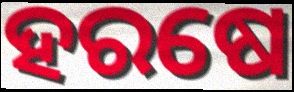
ହରଷେ